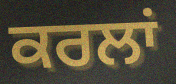
ਕਰਲਾਂ